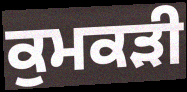
ਕੁਮਕੜੀ